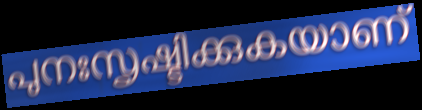
പുനഃസൃഷ്ടിക്കുകയാണ്